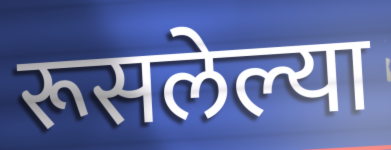
रूसलेल्या